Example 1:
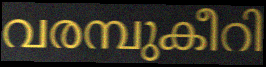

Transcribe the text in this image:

വരമ്പുകീറി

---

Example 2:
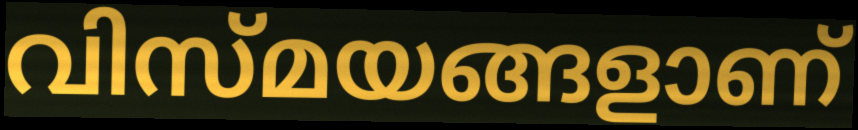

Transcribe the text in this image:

വിസ്മയങ്ങളാണ്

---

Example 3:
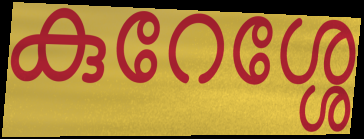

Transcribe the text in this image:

കുറേശ്ശേ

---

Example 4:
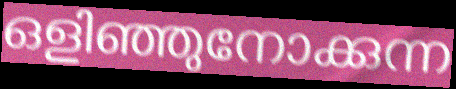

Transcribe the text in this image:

ഒളിഞ്ഞുനോക്കുന്ന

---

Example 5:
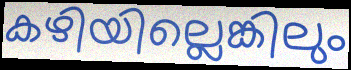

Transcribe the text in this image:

കഴിയില്ലെങ്കിലും